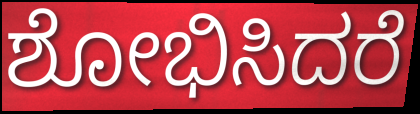
ಶೋಭಿಸಿದರೆ